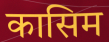
कासिम